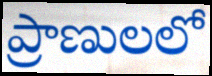
ప్రాణులలో